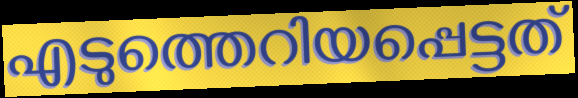
എടുത്തെറിയപ്പെട്ടത്